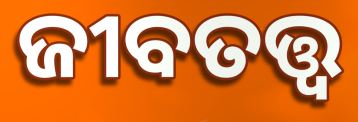
ଜୀବତତ୍ତ୍ୱ